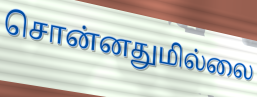
சொன்னதுமில்லை